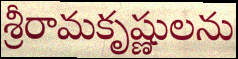
శ్రీరామకృష్ణులను